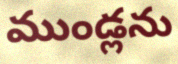
ముండ్లను